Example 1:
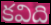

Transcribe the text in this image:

కవిది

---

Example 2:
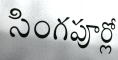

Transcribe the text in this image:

సింగపూర్లో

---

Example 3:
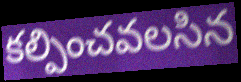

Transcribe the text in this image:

కల్పించవలసిన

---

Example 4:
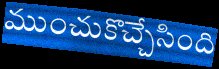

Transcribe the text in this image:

ముంచుకొచ్చేసింది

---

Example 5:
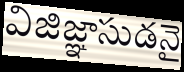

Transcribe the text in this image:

విజిజ్ఞాసుడనై